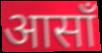
आसाँ